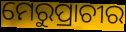
ମେରୁପ୍ରାଚୀର